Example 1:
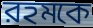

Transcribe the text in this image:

রহমকে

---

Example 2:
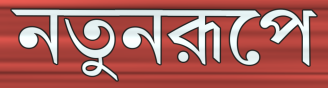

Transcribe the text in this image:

নতুনরূপে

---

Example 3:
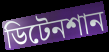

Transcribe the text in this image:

ডিটেনশান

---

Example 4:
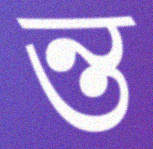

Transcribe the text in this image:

ন্ত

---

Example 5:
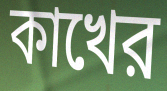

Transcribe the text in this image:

কাখের